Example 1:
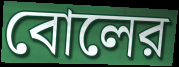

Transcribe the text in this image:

বোলের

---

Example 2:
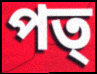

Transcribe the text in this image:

পত্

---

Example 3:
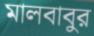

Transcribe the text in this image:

মালবাবুর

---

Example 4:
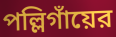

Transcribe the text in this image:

পল্লিগাঁয়ের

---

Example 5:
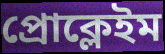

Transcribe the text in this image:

প্রোক্লেইম